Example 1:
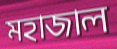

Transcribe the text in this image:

মহাজাল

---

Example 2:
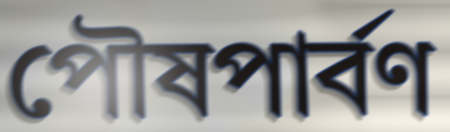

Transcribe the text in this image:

পৌষপার্বণ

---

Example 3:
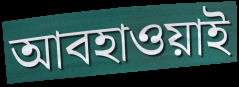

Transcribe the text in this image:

আবহাওয়াই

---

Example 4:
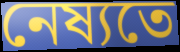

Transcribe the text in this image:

নেষ্যতে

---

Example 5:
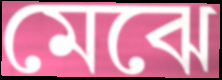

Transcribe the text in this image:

মেঝে